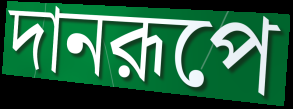
দানরূপে